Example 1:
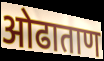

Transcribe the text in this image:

ओढाताण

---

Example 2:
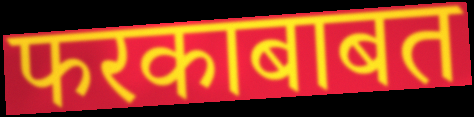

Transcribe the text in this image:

फरकाबाबत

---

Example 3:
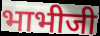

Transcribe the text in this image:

भाभीजी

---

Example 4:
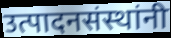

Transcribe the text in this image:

उत्पादनसंस्थांनी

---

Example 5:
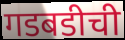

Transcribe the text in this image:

गडबडीची